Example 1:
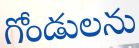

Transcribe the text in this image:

గోండులను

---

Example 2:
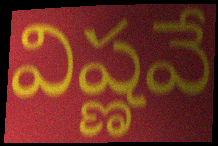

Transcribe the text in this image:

విష్ణవే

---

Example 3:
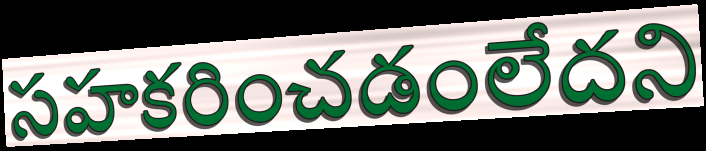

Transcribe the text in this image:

సహకరించడంలేదని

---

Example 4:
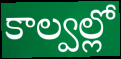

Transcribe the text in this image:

కాల్వల్లో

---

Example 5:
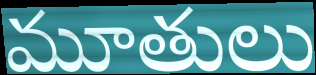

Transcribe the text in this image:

మూతులు